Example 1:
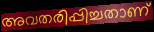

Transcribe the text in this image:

അവതരിപ്പിച്ചതാണ്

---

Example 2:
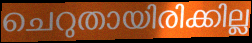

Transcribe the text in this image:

ചെറുതായിരിക്കില്ല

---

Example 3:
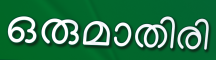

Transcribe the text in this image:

ഒരുമാതിരി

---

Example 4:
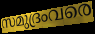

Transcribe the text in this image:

സമുദ്രംവരെ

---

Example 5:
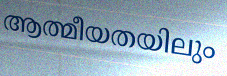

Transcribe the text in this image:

ആത്മീയതയിലും